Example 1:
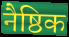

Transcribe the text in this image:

नैष्ठिक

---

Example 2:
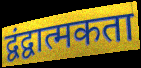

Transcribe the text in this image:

द्वंद्वात्मकता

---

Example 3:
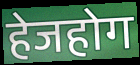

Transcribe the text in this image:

हेजहोग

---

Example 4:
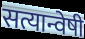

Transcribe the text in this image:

सत्यान्वेषी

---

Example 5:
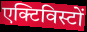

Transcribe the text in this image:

एक्टिविस्टों